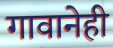
गावानेही